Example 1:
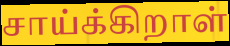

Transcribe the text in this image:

சாய்க்கிறாள்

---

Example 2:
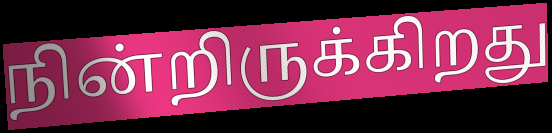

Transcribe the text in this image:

நின்றிருக்கிறது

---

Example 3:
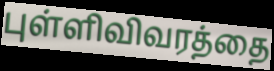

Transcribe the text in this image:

புள்ளிவிவரத்தை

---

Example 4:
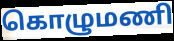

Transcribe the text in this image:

கொழுமணி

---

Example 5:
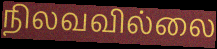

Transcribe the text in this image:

நிலவவில்லை